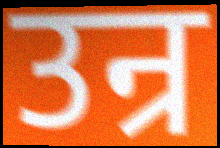
उन्र